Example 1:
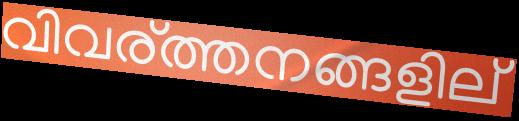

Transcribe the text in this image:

വിവര്ത്തനങ്ങളില്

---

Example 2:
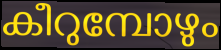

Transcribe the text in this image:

കീറുമ്പോഴും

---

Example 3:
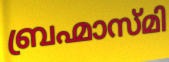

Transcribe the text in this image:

ബ്രഹ്മാസ്മി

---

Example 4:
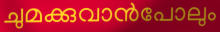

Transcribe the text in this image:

ചുമക്കുവാൻപോലും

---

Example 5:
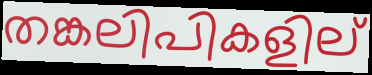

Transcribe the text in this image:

തങ്കലിപികളില്